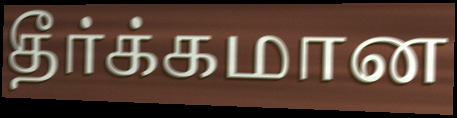
தீர்க்கமான